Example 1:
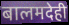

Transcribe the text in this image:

बालमदेही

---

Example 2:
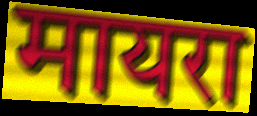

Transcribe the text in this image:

मायरा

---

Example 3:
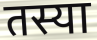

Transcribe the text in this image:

तस्या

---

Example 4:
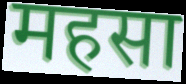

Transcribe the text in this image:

महसा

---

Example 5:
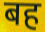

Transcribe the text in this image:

बह